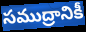
సముద్రానికీ